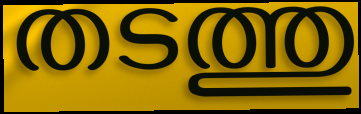
തടത്തു